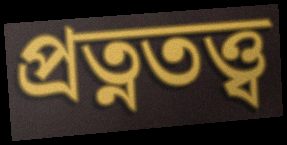
প্রত্নতত্ত্ব